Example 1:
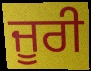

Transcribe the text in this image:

ਜੂਰੀ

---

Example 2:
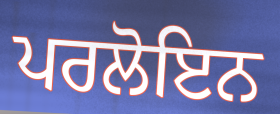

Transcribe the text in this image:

ਪਰਲੋਇਨ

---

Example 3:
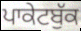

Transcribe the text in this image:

ਪਾਕੇਟਬੁੱਕ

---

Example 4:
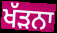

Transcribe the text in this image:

ਖੱੜਨਾ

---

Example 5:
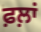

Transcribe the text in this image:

ਫ਼ਲ਼ਾਂ